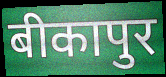
बीकापुर